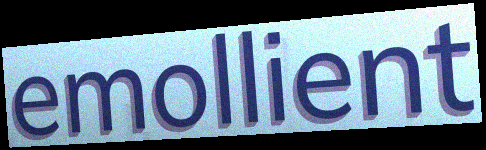
emollient